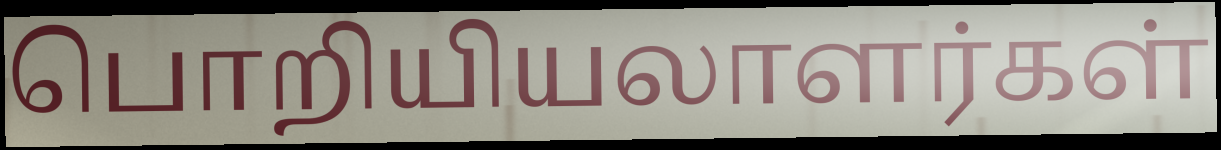
பொறியியலாளர்கள்